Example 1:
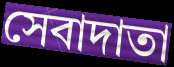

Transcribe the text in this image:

সেবাদাতা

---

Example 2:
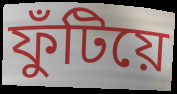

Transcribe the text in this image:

ফুঁটিয়ে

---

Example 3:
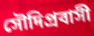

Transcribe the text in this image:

সৌদিপ্রবাসী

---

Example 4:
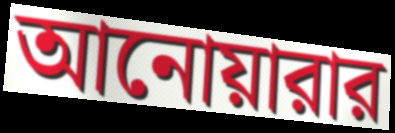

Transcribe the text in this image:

আনোয়ারার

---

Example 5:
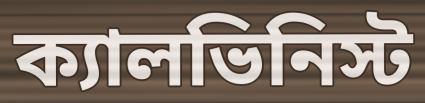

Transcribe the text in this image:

ক্যালভিনিস্ট